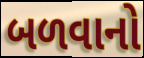
બળવાનો